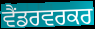
ਵੈਂਡਰਵਰਕਰ